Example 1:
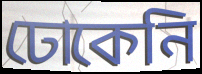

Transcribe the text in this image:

ঢোকেনি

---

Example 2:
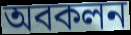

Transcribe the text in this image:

অবকলন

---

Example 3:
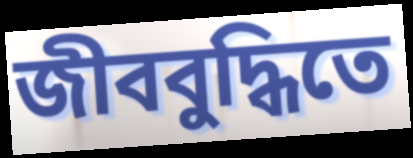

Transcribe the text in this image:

জীববুদ্ধিতে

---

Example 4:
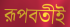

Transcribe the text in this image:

রূপবতীই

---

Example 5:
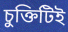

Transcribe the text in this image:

চুক্তিটিই